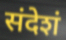
संदेशं